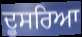
ਦੂਸਰਿਆ